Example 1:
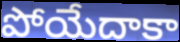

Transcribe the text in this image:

పోయేదాకా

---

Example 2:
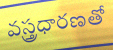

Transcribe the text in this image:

వస్త్రధారణతో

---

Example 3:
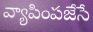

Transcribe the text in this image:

వ్యాపింపజేసే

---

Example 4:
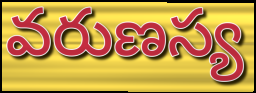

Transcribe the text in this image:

వరుణస్య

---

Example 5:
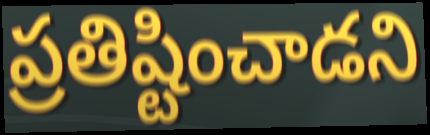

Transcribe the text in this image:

ప్రతిష్టించాడని